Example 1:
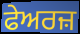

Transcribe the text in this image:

ਫੇਅਰਜ਼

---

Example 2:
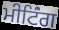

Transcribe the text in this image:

ਮੀਟਿਂੰਗ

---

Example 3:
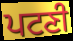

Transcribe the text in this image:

ਪਟਣੀ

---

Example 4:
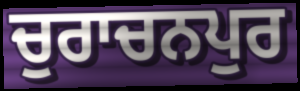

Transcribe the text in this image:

ਚੁਰਾਚਨਪੁਰ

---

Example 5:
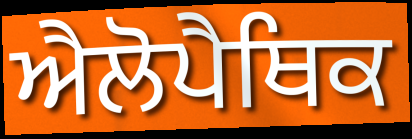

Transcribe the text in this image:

ਐਲੋਪੈਥਿਕ